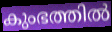
കുംഭത്തിൽ